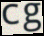
cg